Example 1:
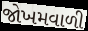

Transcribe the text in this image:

જોખમવાળી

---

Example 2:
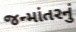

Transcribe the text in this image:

જન્માંતરનું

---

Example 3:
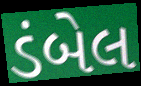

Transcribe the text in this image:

ડંબેલ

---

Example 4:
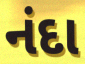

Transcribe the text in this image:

નંદા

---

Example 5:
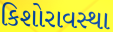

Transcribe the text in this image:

કિશોરાવસ્થા